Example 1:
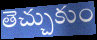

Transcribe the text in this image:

తెచ్చుకుం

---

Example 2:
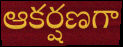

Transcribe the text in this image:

ఆకర్షణగా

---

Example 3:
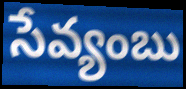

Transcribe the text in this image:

సేవ్యంబు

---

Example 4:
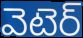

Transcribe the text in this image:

వెటెర్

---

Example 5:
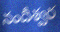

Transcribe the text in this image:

నందీశ్వర